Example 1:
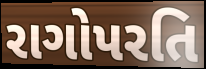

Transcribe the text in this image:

રાગોપરતિ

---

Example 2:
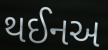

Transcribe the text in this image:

થઈનઅ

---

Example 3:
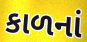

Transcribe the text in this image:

કાળનાં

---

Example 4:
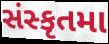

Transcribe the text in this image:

સંસ્કૃતમા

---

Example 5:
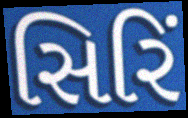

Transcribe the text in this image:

સિરિં